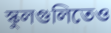
স্কুলগুলিতেও